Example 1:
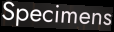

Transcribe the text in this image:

Specimens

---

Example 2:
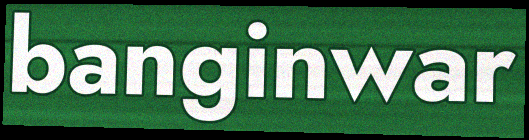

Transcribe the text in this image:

banginwar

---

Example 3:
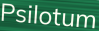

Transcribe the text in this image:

Psilotum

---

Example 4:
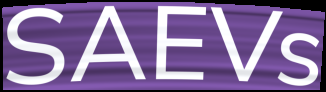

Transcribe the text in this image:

SAEVs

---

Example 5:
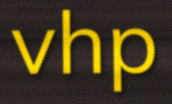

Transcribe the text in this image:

vhp